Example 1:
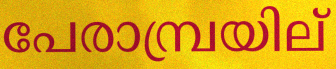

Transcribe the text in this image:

പേരാമ്പ്രയില്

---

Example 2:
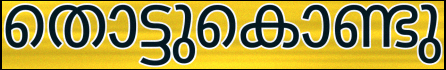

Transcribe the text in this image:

തൊട്ടുകൊണ്ടു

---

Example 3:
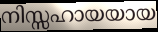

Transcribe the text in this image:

നിസ്സഹായയായ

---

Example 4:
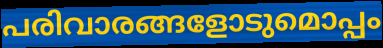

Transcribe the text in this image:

പരിവാരങ്ങളോടുമൊപ്പം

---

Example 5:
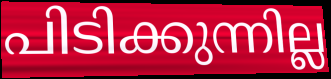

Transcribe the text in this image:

പിടിക്കുന്നില്ല